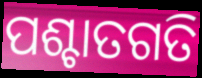
ପଶ୍ଚାତଗତି